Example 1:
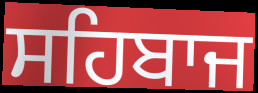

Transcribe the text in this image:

ਸਹਿਬਾਜ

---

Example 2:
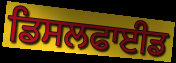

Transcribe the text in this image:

ਡਿਸਲਫਾਈਡ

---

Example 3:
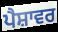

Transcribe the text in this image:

ਪੈਸ਼ਾਵਰ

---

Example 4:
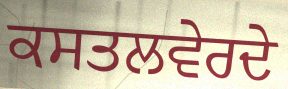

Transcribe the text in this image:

ਕਸਤਲਵੇਰਦੇ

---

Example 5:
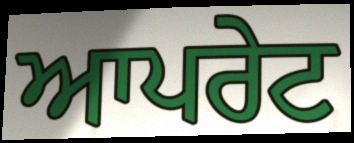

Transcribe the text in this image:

ਆਪਰੇਟ